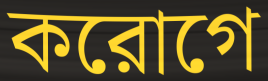
করোগে